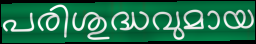
പരിശുദ്ധവുമായ